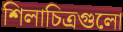
শিলাচিত্রগুলো